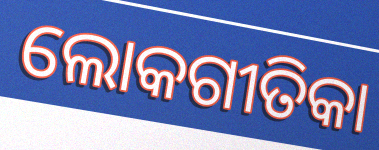
ଲୋକଗୀତିକା